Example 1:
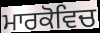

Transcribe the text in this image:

ਮਾਰਕੋਵਿਚ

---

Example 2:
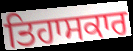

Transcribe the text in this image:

ਤਿਹਾਸਕਾਰ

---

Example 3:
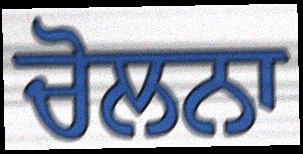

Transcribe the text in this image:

ਚੋਲਨਾ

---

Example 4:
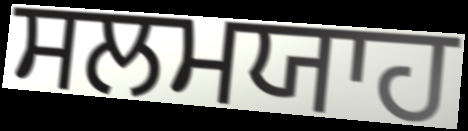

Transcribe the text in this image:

ਸਲਮਯਾਹ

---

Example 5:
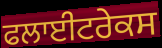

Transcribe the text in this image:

ਫਲਾਈਟਰੇਕਸ